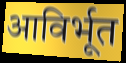
आविर्भूत